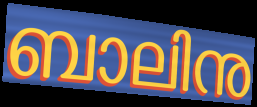
ബാലിനു